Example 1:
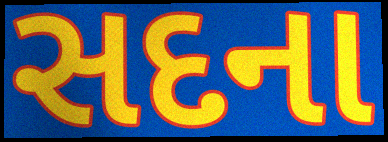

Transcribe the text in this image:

સદના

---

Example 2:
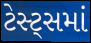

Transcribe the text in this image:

ટેસ્ટ્સમાં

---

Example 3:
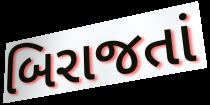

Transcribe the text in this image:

બિરાજતાં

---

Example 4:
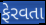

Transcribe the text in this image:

ફેરવતા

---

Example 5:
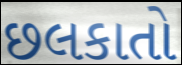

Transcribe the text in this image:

છલકાતો